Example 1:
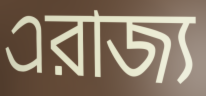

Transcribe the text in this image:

এরাজ্য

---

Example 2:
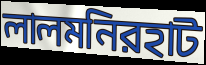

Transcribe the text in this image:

লালমনিরহাট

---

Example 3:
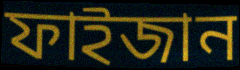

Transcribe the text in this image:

ফাইজান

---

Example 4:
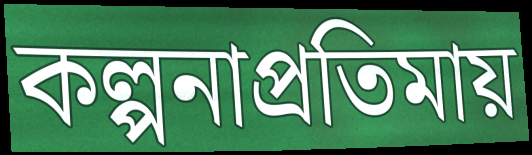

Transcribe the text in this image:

কল্পনাপ্রতিমায়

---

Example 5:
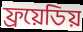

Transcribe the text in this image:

ফ্রয়েডিয়